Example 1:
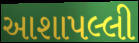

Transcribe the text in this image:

આશાપલ્લી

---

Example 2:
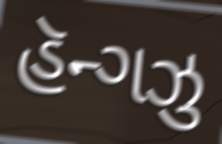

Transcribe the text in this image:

હૅન્ગઝુ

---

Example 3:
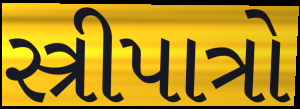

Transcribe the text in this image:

સ્ત્રીપાત્રો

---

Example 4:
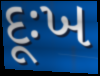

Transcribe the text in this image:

દૂઃખ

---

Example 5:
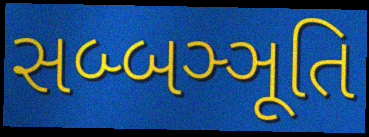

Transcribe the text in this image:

સબ્બઞ્ઞૂતિ